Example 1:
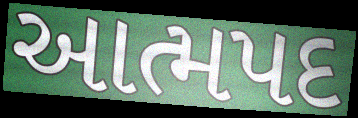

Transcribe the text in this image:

આત્મપદ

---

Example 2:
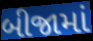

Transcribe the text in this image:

બીજામાં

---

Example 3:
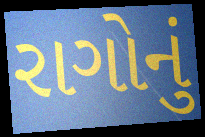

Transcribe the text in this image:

રાગોનું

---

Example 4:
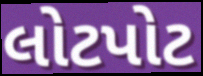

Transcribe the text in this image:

લોટપોટ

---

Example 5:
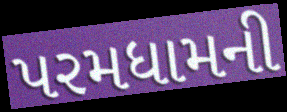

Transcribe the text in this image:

પરમધામની